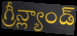
గ్రీన్ల్యాండ్